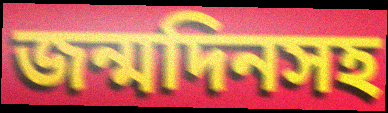
জন্মদিনসহ